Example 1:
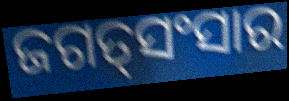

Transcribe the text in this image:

ଜଗତ୍‌ସଂସାର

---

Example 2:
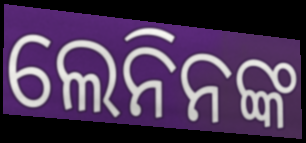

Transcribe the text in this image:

ଲେନିନଙ୍କ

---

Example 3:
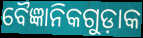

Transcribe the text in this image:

ବୈଜ୍ଞାନିକଗୁଡ଼ାକ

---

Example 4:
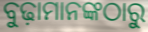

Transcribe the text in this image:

ବୁଢ଼ାମାନଙ୍କଠାରୁ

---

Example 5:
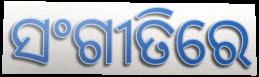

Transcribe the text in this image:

ସଂଗୀତିରେ